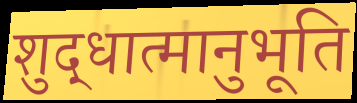
शुद्धात्मानुभूति